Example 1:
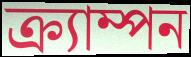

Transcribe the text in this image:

ক্র্যাম্পন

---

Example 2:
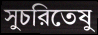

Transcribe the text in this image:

সুচরিতেষু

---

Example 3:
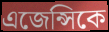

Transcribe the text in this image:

এজেন্সিকে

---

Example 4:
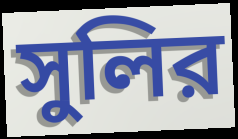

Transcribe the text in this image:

সুলির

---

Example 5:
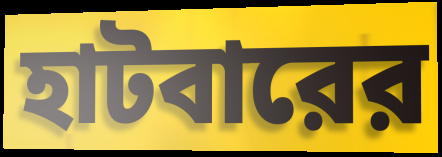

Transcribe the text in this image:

হাটবারের